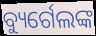
ବ୍ୟୁର୍ଗେଲଙ୍କ